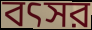
বৎসর